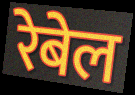
रेबेल